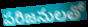
పరిజనులతో